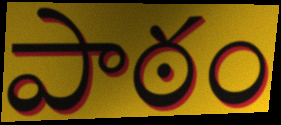
పాఠం